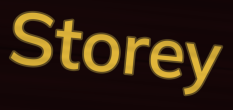
Storey